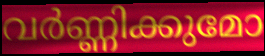
വർണ്ണിക്കുമോ